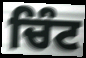
ਚਿੰਟ